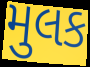
મુલક